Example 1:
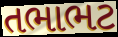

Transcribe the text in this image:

તભાભટ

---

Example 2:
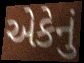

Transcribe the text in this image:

એકેનું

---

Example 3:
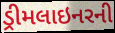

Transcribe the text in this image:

ડ્રીમલાઇનરની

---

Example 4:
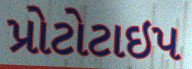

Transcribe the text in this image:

પ્રોટોટાઇપ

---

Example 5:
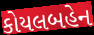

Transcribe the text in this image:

કોયલબહેન